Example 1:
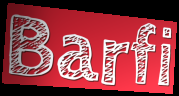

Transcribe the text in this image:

Barfi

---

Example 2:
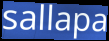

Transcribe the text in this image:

sallapa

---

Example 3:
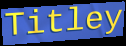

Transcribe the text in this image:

Titley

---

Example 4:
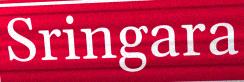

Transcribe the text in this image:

Sringara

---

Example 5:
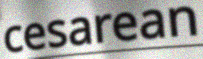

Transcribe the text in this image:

cesarean